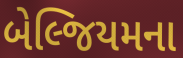
બેલ્જિયમના